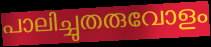
പാലിച്ചുതരുവോളം